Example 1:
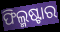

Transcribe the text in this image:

ଫିଲ୍ମଷ୍ଟାର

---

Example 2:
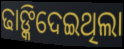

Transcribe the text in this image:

ଢାଙ୍କିଦେଇଥିଲା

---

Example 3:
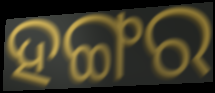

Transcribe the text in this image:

ହଙ୍ଗର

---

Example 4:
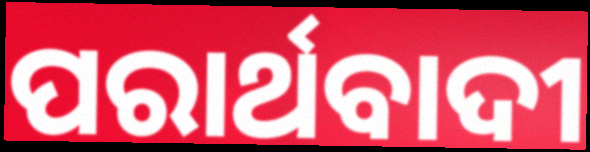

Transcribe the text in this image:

ପରାର୍ଥବାଦୀ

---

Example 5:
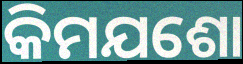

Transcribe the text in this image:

କିମଯଶୋ